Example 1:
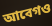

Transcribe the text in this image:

আবেগও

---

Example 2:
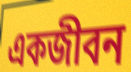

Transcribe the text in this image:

একজীবন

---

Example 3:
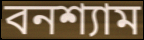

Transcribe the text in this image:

বনশ্যাম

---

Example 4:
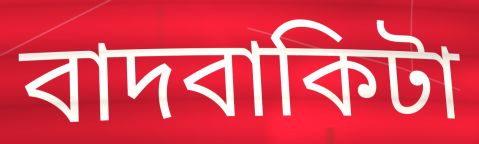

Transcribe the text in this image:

বাদবাকিটা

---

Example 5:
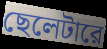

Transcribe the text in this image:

ছেলেটারে